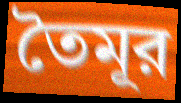
তৈমূর